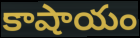
కాషాయం